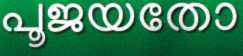
പൂജയതോ